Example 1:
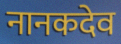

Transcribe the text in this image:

नानकदेव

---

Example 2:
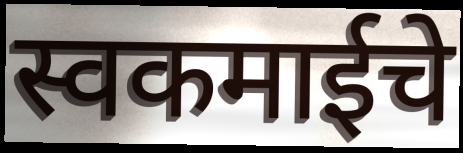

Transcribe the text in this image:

स्वकमाईचे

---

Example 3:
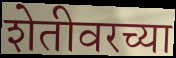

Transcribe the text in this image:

शेतीवरच्या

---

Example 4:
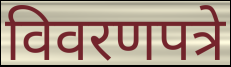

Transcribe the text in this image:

विवरणपत्रे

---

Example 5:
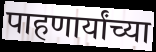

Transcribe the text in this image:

पाहणार्यांच्या